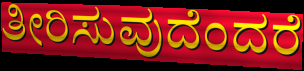
ತೀರಿಸುವುದೆಂದರೆ